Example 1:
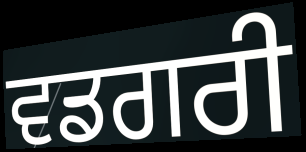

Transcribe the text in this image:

ਵਡਗਰੀ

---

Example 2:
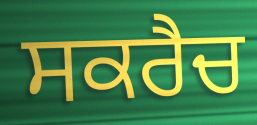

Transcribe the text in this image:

ਸਕਰੈਚ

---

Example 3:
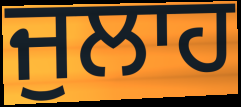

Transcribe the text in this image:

ਜੁਲਾਹ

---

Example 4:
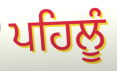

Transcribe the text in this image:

ਪਹਿਲੂੰ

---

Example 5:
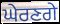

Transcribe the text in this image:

ਘੇਰਣਗੇ